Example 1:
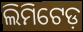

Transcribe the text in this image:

ଲିମିଟେଡ଼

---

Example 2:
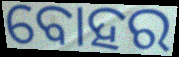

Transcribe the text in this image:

ବୋହର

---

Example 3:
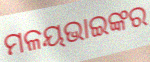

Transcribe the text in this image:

ମଳୟଭାଇଙ୍କର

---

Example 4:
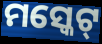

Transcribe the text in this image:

ମସ୍କେଟ୍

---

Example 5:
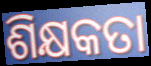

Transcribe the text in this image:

ଶିକ୍ଷକତା